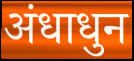
अंधाधुन